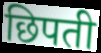
छिपती